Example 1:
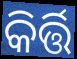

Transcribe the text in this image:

କିର୍ତ୍ତି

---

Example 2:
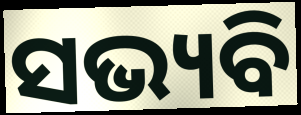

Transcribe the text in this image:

ସଭ୍ୟବି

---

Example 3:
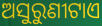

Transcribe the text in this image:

ଅସୁରୁଣୀଟାଏ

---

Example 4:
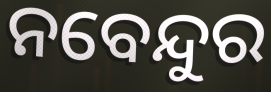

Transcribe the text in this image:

ନବେନ୍ଦୁର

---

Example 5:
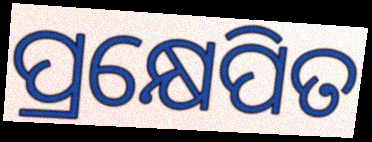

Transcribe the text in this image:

ପ୍ରକ୍ଷେପିତ